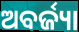
ଅବର୍ଜ୍ୟା